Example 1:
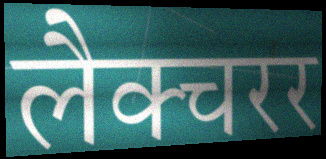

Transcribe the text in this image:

लैक्चरर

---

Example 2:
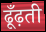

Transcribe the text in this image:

ढूँढ़ती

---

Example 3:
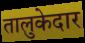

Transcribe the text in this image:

तालुकेदार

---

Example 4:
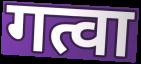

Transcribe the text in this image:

गत्वा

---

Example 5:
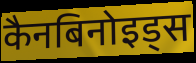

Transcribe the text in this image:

कैनबिनोइड्स